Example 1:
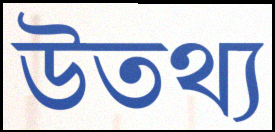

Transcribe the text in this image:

উতথ্য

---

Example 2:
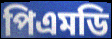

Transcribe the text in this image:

পিএমডি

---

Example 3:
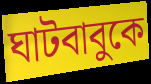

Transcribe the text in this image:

ঘাটবাবুকে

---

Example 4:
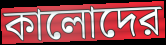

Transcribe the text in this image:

কালোদের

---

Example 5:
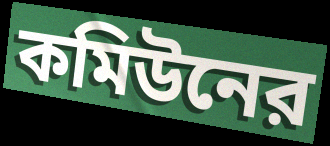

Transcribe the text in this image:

কমিউনের